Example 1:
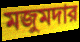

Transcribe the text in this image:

মজুমদার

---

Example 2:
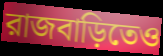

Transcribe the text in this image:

রাজবাড়িতেও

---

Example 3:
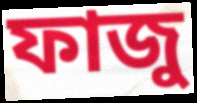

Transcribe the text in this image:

ফাজু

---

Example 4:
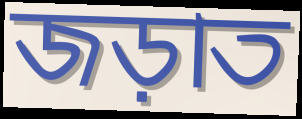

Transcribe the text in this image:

জড়াত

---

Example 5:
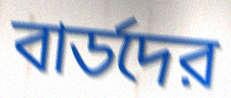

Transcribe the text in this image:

বার্ডদের